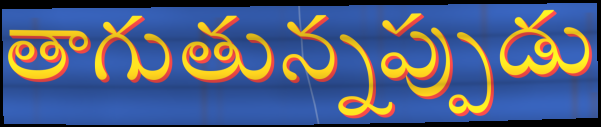
తాగుతున్నప్పుడు